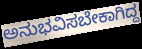
ಅನುಭವಿಸಬೇಕಾಗಿದ್ದ